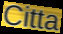
Citta